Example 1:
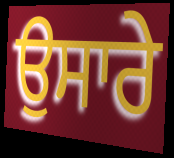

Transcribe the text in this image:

ਉਸਾਰੇ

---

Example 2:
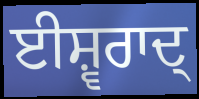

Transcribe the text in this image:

ਈਸ਼੍ਵਰਾਦ੍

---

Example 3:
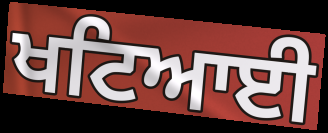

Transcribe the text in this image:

ਖਟਿਆਈ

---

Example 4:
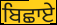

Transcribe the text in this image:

ਬਿਛਾਏ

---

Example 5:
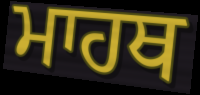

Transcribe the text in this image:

ਮਾਹਥ